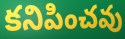
కనిపించవు